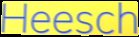
Heesch